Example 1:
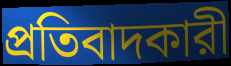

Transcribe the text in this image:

প্রতিবাদকারী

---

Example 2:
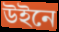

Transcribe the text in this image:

উইনে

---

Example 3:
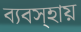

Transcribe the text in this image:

ব্যবস্হায়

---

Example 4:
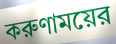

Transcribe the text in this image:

করুণাময়ের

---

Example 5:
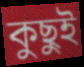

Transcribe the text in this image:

কুছুই